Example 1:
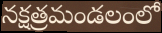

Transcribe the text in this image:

నక్షత్రమండలంలో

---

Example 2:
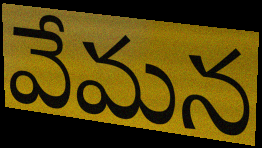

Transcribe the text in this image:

వేమన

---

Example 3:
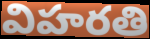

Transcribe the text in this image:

విహరతి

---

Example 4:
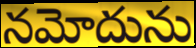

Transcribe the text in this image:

నమోదును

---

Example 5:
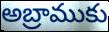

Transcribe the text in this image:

అబ్రాముకు